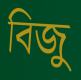
বিজু